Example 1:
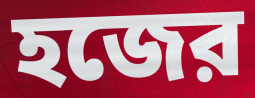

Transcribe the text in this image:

হজের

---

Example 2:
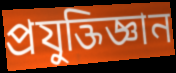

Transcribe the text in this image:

প্রযুক্তিজ্ঞান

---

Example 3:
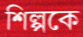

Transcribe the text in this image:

শিল্পকে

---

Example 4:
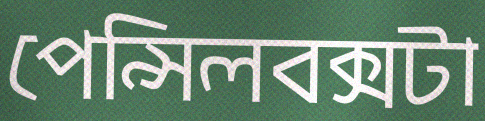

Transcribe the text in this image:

পেন্সিলবক্সটা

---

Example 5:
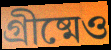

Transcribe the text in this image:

গ্রীষ্মেও